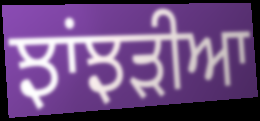
ਝਾਂਝੜੀਆ